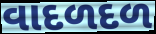
વાદળદળ